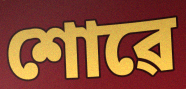
শোৱে